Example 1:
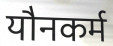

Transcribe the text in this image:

यौनकर्म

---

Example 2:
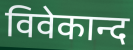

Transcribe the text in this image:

विवेकान्द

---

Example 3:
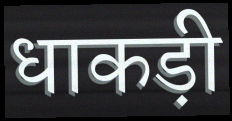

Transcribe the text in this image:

धाकड़ी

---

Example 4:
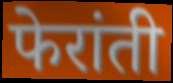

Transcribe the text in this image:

फेरांती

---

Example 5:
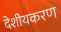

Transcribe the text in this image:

देशीयकरण